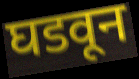
घडवून